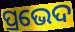
ପ୍ରଭେଦ